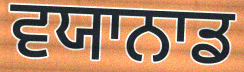
ਵਯਾਨਾਡ